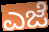
ಎಜೆ